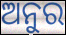
ଅନୁର